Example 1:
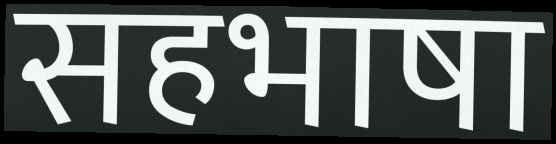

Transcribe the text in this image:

सहभाषा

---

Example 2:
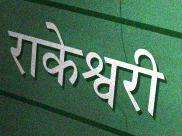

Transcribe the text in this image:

राकेश्वरी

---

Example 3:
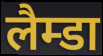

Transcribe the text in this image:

लैम्डा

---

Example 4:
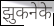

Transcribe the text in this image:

झुकनेके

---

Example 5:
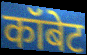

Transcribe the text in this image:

कॉबेट